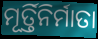
ମୂର୍ତ୍ତିନିର୍ମାତା